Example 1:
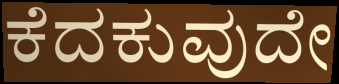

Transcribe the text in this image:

ಕೆದಕುವುದೇ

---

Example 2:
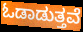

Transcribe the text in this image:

ಓಡಾಡುತ್ತವೆ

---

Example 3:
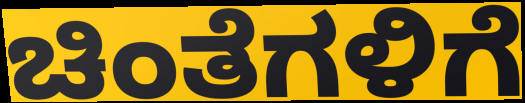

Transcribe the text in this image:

ಚಿಂತೆಗಳಿಗೆ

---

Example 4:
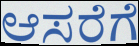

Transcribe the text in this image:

ಆಸರೆಗೆ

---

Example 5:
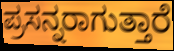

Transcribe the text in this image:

ಪ್ರಸನ್ನರಾಗುತ್ತಾರೆ